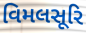
વિમલસૂરિ